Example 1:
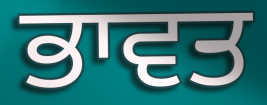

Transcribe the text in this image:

ਭਾਵਤ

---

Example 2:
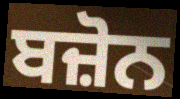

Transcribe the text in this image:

ਬਜ਼ੋਨ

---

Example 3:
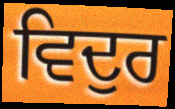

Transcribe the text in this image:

ਵਿਦੁਰ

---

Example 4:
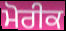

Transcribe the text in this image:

ਮੋਰੀਕ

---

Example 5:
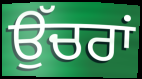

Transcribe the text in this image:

ਉੱਚਰਾਂ